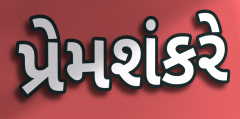
પ્રેમશંકરે